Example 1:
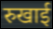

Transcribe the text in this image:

रुखाई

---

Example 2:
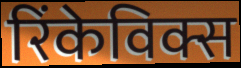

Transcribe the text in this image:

रिंकेविक्स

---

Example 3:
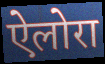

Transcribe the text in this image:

ऐलोरा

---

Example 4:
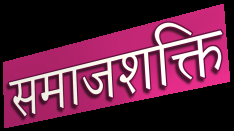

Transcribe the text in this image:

समाजशक्ति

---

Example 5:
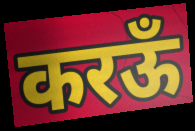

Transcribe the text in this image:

करऊँ